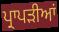
ਪ੍ਰਾਪੜੀਆਂ